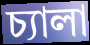
চ্যালা